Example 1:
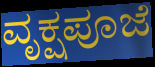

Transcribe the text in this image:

ವೃಕ್ಷಪೂಜೆ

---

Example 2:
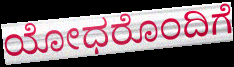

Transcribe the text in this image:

ಯೋಧರೊಂದಿಗೆ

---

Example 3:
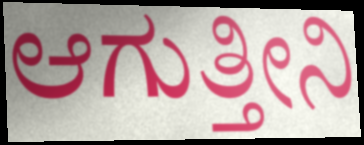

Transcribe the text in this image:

ಆಗುತ್ತೀನಿ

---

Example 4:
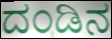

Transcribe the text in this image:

ದಂಡಿನ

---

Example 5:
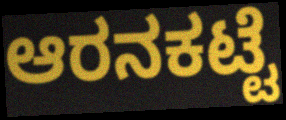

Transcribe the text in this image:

ಆರನಕಟ್ಟೆ